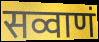
सव्वाणं